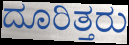
ದೂರಿತ್ತರು